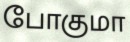
போகுமா